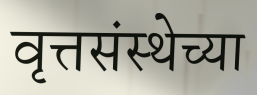
वृत्तसंस्थेच्या